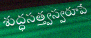
శుద్ధసత్త్వస్వరూపే